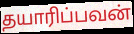
தயாரிப்பவன்